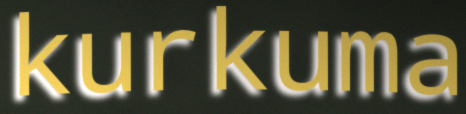
kurkuma